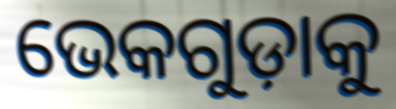
ଭେକଗୁଡ଼ାକୁ